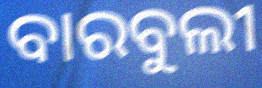
ବାରବୁଲୀ